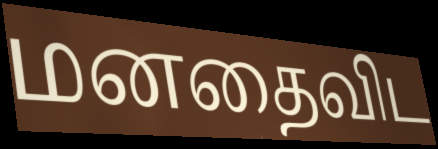
மனதைவிட